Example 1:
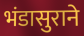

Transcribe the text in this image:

भंडासुराने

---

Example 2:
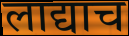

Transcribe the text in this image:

लाद्याच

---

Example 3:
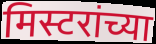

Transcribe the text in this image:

मिस्टरांच्या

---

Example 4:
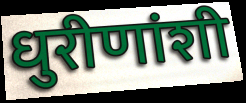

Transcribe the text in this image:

धुरीणांशी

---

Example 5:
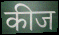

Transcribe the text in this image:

कीज